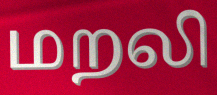
மறலி